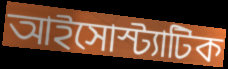
আইসোস্ট্যাটিক